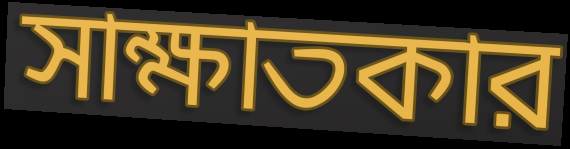
সাক্ষাতকার